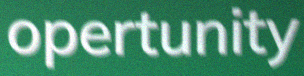
opertunity